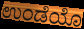
ಉಂಡೆಯೊ